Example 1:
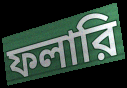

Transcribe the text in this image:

ফলারি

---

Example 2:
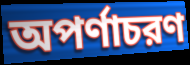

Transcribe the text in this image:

অপর্ণাচরণ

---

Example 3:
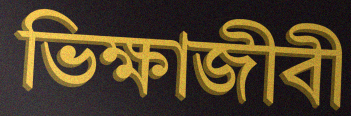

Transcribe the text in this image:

ভিক্ষাজীবী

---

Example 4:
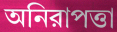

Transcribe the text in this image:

অনিরাপত্তা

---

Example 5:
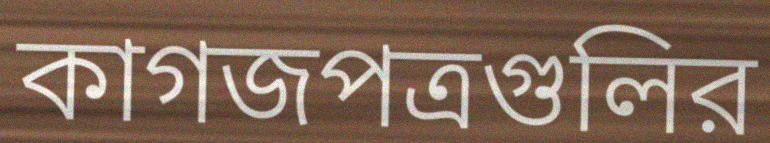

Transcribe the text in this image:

কাগজপত্রগুলির